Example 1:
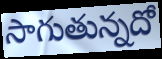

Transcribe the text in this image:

సాగుతున్నదో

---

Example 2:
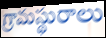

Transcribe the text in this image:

గ్రామస్థురాలు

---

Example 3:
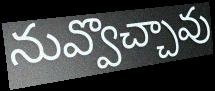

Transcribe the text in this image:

నువ్వొచ్చావు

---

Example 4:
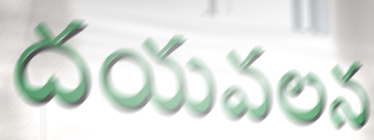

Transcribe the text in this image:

దయవలన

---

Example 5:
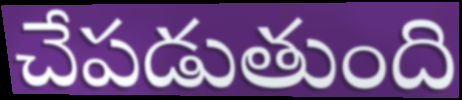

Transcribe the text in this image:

చేపడుతుంది